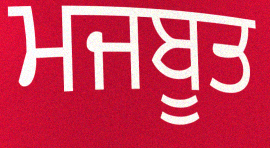
ਮਜਬੂਤ